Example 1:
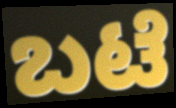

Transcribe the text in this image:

ಬಟೆ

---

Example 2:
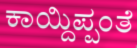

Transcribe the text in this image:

ಕಾಯ್ದಿಪ್ಪಂತೆ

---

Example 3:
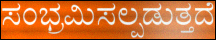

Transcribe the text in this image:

ಸಂಭ್ರಮಿಸಲ್ಪಡುತ್ತದೆ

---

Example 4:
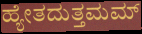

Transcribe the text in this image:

ಹ್ಯೇತದುತ್ತಮಮ್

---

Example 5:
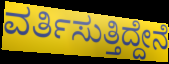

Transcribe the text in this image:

ವರ್ತಿಸುತ್ತಿದ್ದೇನೆ